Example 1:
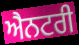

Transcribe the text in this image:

ਐਨਟਰੀ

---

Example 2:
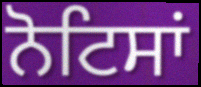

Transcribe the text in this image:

ਨੋਟਿਸਾਂ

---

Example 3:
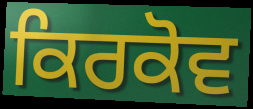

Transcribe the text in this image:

ਕਿਰਕੋਵ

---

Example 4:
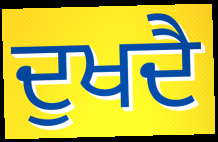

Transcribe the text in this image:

ਦੁਖਦੈ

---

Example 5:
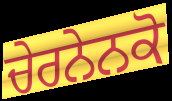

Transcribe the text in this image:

ਚੇਰਨੇਨਕੋ